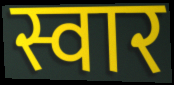
स्वार